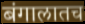
बंगालातच